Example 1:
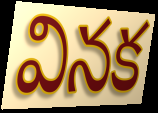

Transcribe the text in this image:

వినక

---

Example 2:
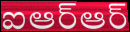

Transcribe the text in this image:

ఐఆర్ఆర్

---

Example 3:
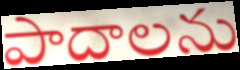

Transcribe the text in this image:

పాదాలను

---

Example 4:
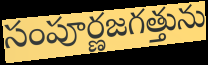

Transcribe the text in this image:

సంపూర్ణజగత్తును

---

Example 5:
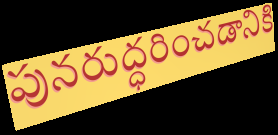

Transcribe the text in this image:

పునరుద్ధరించడానికి